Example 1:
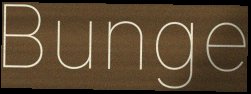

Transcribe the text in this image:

Bunge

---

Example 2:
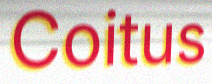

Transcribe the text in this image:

Coitus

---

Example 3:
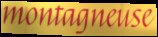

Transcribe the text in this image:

montagneuse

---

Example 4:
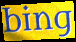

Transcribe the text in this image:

bing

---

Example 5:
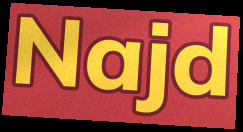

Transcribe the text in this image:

Najd